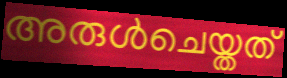
അരുൾചെയ്തത്